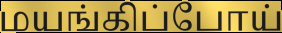
மயங்கிப்போய்